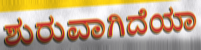
ಶುರುವಾಗಿದೆಯಾ